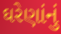
ઘરેણાંનું